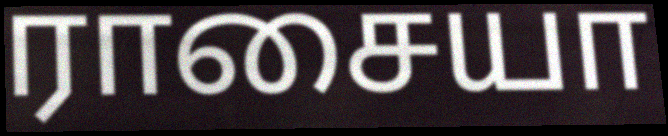
ராசையா